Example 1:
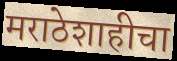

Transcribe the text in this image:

मराठेशाहीचा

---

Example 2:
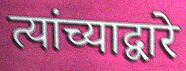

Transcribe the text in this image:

त्यांच्याद्वारे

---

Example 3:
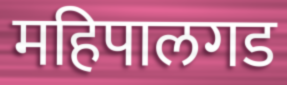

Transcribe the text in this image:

महिपालगड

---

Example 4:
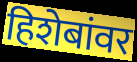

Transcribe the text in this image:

हिशेबांवर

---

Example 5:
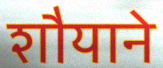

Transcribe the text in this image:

शौयाने